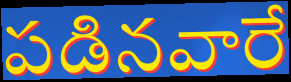
పడినవారే